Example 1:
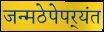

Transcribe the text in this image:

जन्मठेपेपर्यंत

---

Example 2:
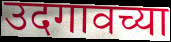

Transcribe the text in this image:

उदगावच्या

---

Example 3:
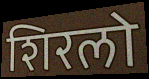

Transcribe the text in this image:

शिरलो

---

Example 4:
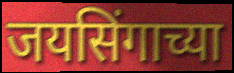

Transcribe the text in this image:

जयसिंगाच्या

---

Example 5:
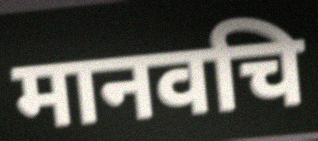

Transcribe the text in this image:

मानवचि